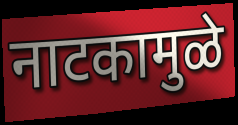
नाटकामुळे